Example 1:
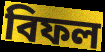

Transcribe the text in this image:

বিফল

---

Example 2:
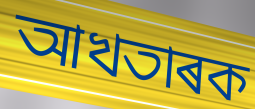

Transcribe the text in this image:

আখতাৰক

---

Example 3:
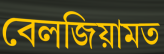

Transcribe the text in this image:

বেলজিয়ামত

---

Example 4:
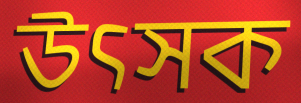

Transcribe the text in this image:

উৎসক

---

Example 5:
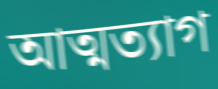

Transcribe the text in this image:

আত্মত্যাগ